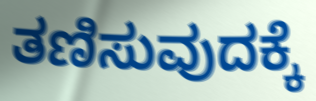
ತಣಿಸುವುದಕ್ಕೆ